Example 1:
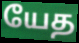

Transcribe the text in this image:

யேத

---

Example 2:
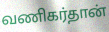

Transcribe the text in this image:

வணிகர்தான்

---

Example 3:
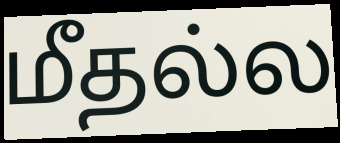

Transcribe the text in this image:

மீதல்ல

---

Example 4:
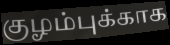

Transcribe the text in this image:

குழம்புக்காக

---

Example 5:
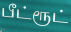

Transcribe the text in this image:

பீட்ரூட்